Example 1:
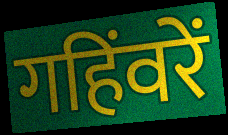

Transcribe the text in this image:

गहिंवरें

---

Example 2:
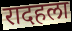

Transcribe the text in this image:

रादहला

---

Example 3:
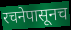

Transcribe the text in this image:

रचनेपासूनच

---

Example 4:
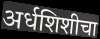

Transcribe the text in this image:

अर्धशिशीचा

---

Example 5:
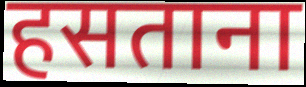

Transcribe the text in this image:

हसताना